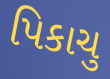
પિકાચુ